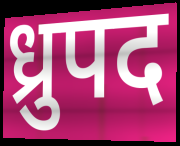
ध्रुपद